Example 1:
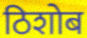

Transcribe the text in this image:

ठिशोब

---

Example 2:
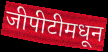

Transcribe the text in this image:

जीपीटीमधून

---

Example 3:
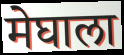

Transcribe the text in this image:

मेघाला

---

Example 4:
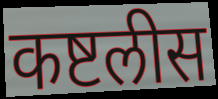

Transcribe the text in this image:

कष्टलीस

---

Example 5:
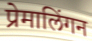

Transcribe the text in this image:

प्रेमालिंगन